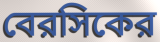
বেরসিকের